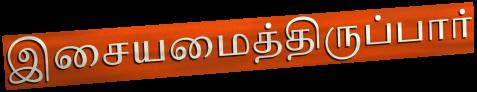
இசையமைத்திருப்பார்